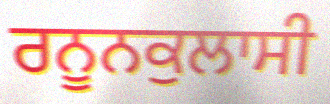
ਰਨੂਨਕੁਲਾਸੀ